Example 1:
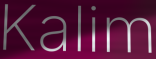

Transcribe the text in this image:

Kalim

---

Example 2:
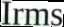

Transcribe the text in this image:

Irms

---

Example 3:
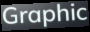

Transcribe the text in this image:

Graphic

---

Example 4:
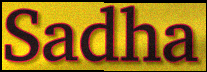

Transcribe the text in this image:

Sadha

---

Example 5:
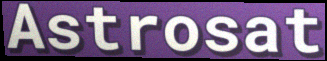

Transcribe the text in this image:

Astrosat